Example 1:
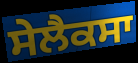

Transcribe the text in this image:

ਸੇਲੈਕਸਾ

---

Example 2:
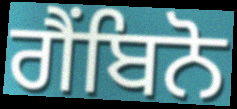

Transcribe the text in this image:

ਗੈਂਬਿਨੋ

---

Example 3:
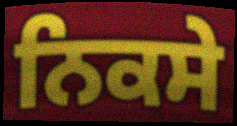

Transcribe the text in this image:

ਨਿਕਸੇ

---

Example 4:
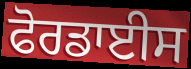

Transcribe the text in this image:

ਫੋਰਡਾਈਸ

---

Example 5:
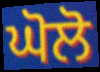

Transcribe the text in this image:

ਘੋਲੋ